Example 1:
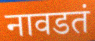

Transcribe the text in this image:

नावडतं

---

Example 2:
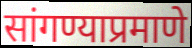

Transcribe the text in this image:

सांगण्याप्रमाणे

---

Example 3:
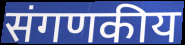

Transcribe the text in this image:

संगणकीय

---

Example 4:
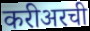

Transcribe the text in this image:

करीअरची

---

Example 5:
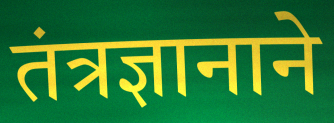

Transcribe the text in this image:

तंत्रज्ञानाने